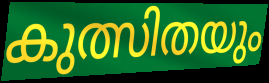
കുത്സിതയും